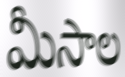
మీసాల